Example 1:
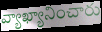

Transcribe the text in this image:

వ్యాఖ్యానించారు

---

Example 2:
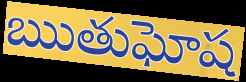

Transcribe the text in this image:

ఋతుఘోష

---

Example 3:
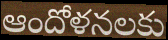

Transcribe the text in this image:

ఆందోళనలకు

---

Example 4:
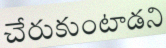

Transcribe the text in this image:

చేరుకుంటాడని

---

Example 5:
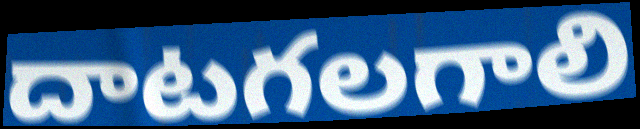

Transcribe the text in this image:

దాటగలగాలి